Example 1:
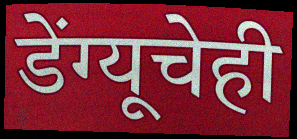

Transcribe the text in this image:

डेंग्यूचेही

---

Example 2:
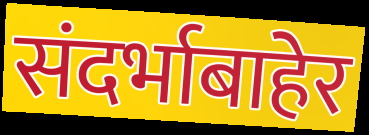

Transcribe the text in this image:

संदर्भाबाहेर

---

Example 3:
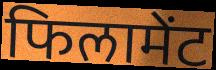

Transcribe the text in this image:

फिलामेंट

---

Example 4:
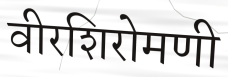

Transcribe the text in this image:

वीरशिरोमणी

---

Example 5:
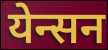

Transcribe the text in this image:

येन्सन